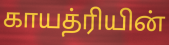
காயத்ரியின்